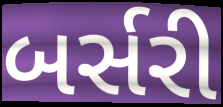
બર્સરી